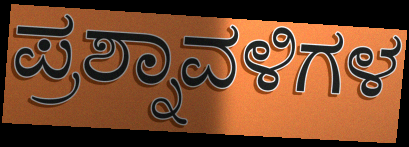
ಪ್ರಶ್ನಾವಳಿಗಳ